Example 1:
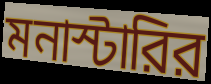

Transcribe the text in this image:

মনাস্টারির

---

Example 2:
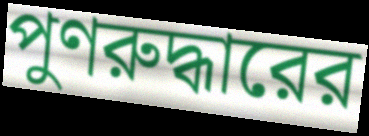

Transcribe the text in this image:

পুণরুদ্ধারের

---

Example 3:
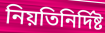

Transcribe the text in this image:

নিয়তিনির্দিষ্ট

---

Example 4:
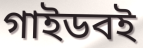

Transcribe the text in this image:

গাইডবই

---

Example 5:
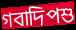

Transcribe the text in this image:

গবাদিপশু